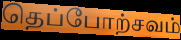
தெப்போற்சவம்